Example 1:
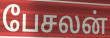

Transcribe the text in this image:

பேசலன்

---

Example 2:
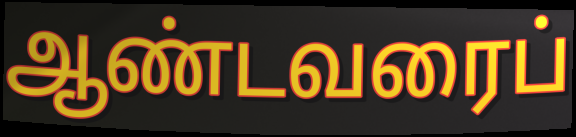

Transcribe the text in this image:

ஆண்டவரைப்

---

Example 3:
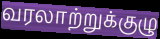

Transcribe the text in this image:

வரலாற்றுக்குழு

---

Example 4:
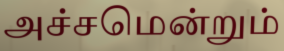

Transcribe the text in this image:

அச்சமென்றும்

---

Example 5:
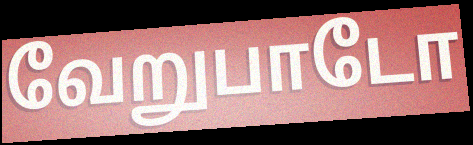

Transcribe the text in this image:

வேறுபாடோ